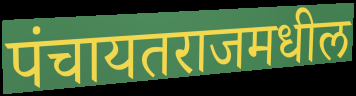
पंचायतराजमधील